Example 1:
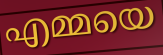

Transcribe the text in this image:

എമ്മയെ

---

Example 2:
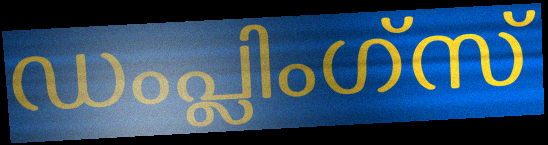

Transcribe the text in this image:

ഡംപ്ലിംഗ്സ്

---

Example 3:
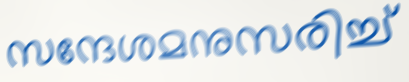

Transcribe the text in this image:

സന്ദേശമനുസരിച്ച്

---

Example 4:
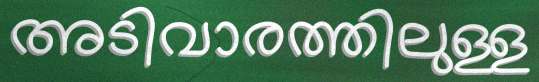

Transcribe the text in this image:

അടിവാരത്തിലുള്ള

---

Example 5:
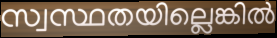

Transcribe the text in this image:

സ്വസ്ഥതയില്ലെങ്കിൽ